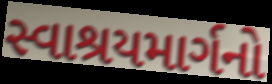
સ્વાશ્રયમાર્ગનો